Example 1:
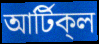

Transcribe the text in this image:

আর্টিক্‌ল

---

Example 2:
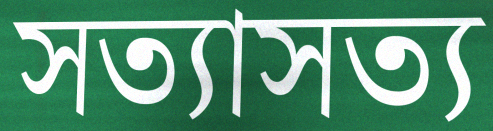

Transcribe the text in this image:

সত্যাসত্য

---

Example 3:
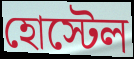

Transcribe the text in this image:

হোস্টেল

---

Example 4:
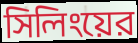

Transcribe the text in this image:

সিলিংয়ের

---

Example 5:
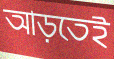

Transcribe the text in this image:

আড়তেই